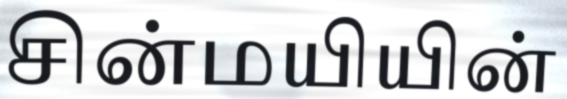
சின்மயியின்